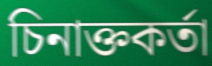
চিনাক্তকৰ্তা